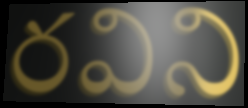
రవిని